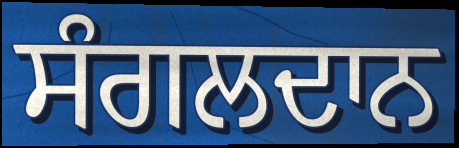
ਸੰਗਲਦਾਨ